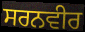
ਸਰਨਵੀਰ